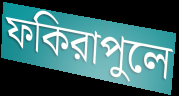
ফকিরাপুলে